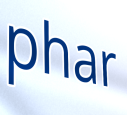
phar